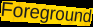
Foreground